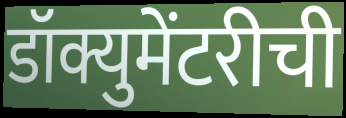
डॉक्युमेंटरीची